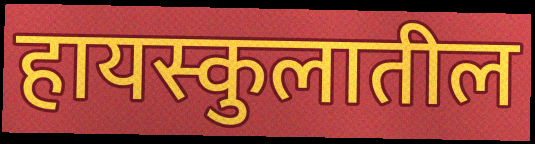
हायस्कुलातील